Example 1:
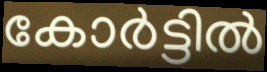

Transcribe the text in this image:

കോർട്ടിൽ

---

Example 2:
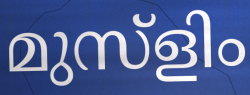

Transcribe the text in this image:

മുസ്ളിം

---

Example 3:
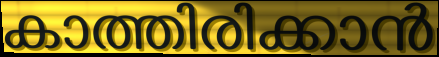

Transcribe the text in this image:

കാത്തിരിക്കാൻ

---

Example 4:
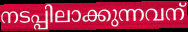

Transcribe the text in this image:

നടപ്പിലാക്കുന്നവന്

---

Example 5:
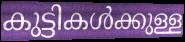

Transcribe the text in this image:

കുട്ടികൾക്കുള്ള